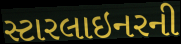
સ્ટારલાઇનરની